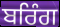
ਬਰਿੰਗ